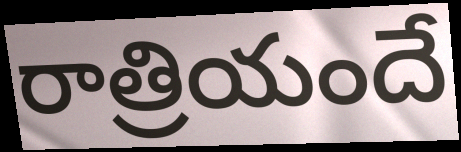
రాత్రియందే